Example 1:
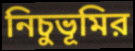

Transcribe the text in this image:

নিচুভূমির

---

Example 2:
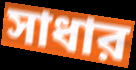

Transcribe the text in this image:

সাধার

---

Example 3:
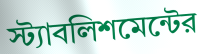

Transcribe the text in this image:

স্ট্যাবলিশমেন্টের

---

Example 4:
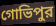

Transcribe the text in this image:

গোভিপুর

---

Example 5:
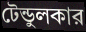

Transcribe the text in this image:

টেন্ডুলকার